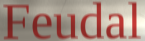
Feudal